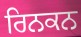
ਰਿਨਕਨ